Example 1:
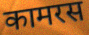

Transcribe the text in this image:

कामरस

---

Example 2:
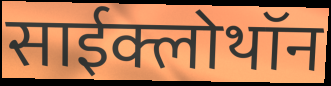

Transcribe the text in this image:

साईक्लोथॉन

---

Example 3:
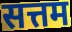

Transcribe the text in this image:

सत्तम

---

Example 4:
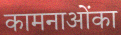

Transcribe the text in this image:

कामनाओंका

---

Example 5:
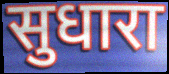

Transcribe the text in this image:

सुधारा